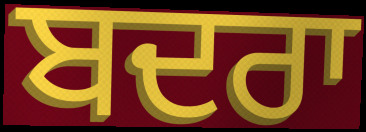
ਬਦਰਾ